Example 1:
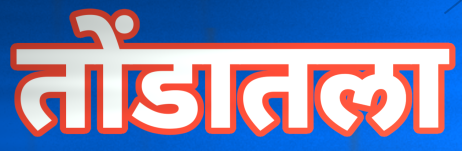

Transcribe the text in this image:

तोंडातला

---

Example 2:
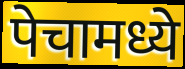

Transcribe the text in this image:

पेचामध्ये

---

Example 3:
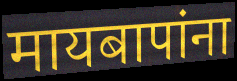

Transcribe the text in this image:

मायबापांना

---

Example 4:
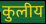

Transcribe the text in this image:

कुलीय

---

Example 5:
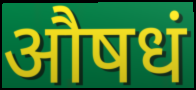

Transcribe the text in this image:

औषधं